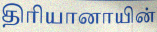
திரியானாயின்